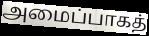
அமைப்பாகத்